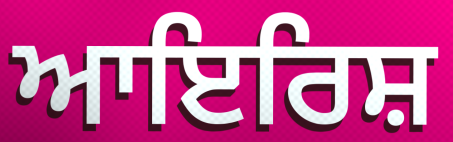
ਆਇਰਿਸ਼